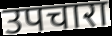
उपचारा